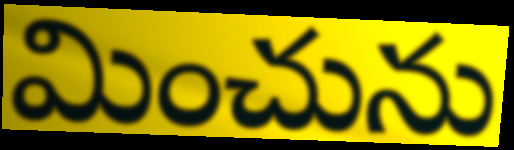
మించును